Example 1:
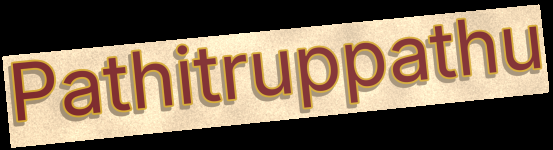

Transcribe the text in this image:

Pathitruppathu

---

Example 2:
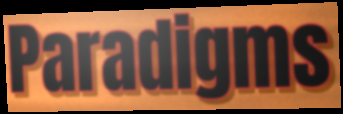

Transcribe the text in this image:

Paradigms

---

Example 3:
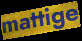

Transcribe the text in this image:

mattige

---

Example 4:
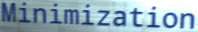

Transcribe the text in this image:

Minimization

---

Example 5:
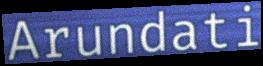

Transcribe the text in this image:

Arundati